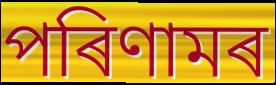
পৰিণামৰ